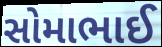
સોમાભાઈ